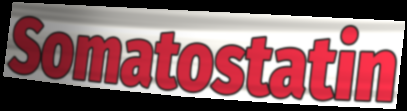
Somatostatin